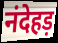
नंदेहड़